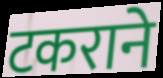
टकराने